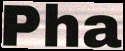
Pha